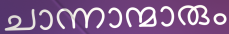
ചാന്നാന്മാരും